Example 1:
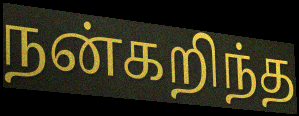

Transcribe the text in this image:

நன்கறிந்த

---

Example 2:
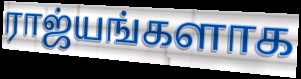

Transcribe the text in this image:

ராஜ்யங்களாக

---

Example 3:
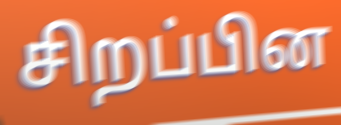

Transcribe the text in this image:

சிறப்பின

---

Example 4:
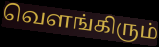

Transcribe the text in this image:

வெளங்கிரும்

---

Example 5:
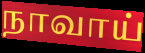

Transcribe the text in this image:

நாவாய்